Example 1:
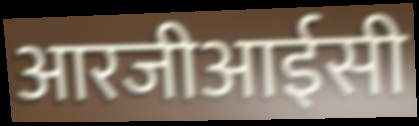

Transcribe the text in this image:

आरजीआईसी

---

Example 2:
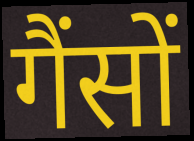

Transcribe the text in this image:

गैंसों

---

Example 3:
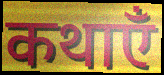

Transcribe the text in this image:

कथाएँ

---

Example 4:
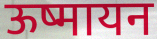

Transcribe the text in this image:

ऊष्मायन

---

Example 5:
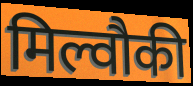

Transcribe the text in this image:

मिल्वौकी